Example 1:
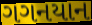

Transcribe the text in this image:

ગગનયાન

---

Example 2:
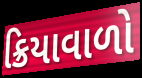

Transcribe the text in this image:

ક્રિયાવાળો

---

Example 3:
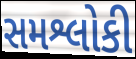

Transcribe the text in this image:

સમશ્લોકી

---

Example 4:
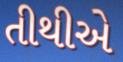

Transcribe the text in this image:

તીથીએ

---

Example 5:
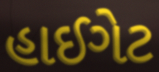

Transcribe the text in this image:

હાઈગેટ